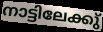
നാട്ടിലേക്കു്